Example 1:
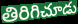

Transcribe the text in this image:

తిరిగిచూడు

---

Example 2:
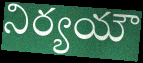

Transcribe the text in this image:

నిర్యయౌ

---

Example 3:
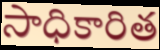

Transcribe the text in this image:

సాధికారిత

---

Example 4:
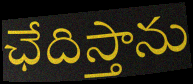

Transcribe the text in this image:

ఛేదిస్తాను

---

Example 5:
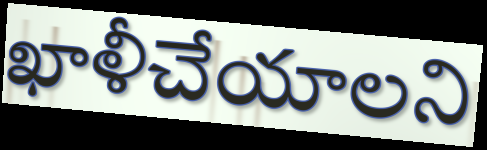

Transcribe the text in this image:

ఖాళీచేయాలని